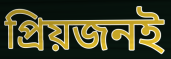
প্রিয়জনই